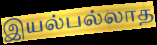
இயல்பல்லாத